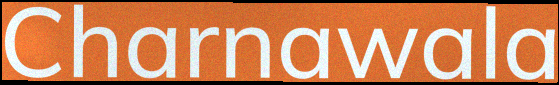
Charnawala